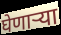
घेणाऱ्या